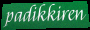
padikkiren